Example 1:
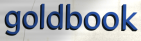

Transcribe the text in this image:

goldbook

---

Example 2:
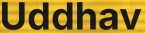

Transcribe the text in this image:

Uddhav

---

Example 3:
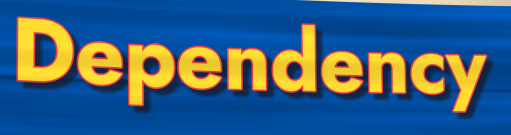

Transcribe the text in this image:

Dependency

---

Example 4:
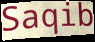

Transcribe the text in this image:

Saqib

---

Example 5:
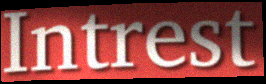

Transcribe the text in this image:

Intrest